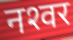
नश्वर